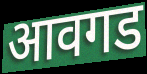
आवगड